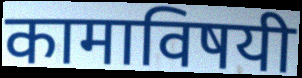
कामाविषयी